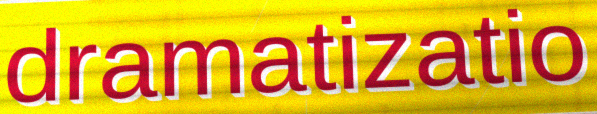
dramatizatio